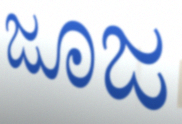
ಜೂಜ